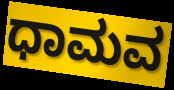
ಧಾಮವ